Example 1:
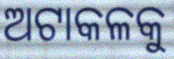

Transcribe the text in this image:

ଅଟାକଳକୁ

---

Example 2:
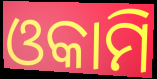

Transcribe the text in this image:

ଓକାମି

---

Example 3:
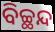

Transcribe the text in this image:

ବିଚ୍ଛନ୍ଦ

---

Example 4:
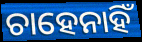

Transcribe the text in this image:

ଚାହେନାହିଁ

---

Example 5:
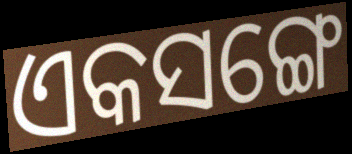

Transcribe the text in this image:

ଏକସଙ୍ଗେ